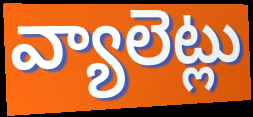
వ్యాలెట్లు